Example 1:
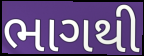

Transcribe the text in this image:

ભાગથી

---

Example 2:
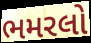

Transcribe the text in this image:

ભમરલો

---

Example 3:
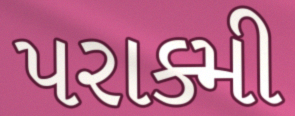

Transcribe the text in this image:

પરાક્મી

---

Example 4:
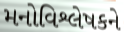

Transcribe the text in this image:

મનોવિશ્લેષકને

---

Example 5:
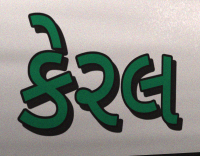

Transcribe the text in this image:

કેરલ